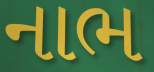
નાભ